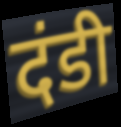
दंडी